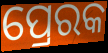
ପ୍ରେରକ